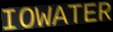
IOWATER